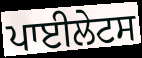
ਪਾਈਲੇਟਸ